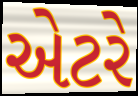
એટરે